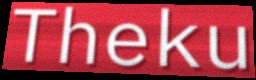
Theku